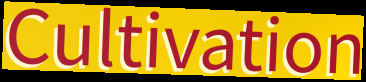
Cultivation